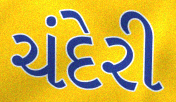
ચંદેરી